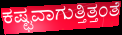
ಕಷ್ಟವಾಗುತ್ತಿತ್ತಂತೆ